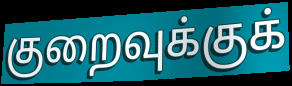
குறைவுக்குக்